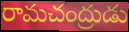
రామచంద్రుడు